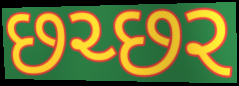
છચ્છર